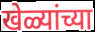
खेळ्यांच्या